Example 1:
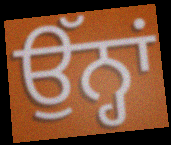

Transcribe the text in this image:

ਉੱਨ੍ਹਾਂ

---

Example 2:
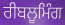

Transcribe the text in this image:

ਰੀਬਲੂਮਿੰਗ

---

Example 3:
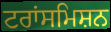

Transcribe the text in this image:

ਟਰਾਂਸਮਿਸ਼ਨ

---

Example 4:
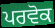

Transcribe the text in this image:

ਪਰਵੋਕ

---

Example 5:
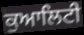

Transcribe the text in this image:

ਕੁਆਲਿਟੀ